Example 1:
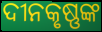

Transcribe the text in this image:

ଦୀନକୃଷ୍ଣଙ୍କ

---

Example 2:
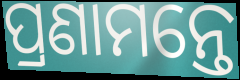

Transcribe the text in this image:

ପ୍ରଣାମନ୍ତେ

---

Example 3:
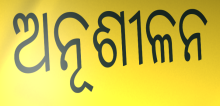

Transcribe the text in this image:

ଅନୂଶୀଳନ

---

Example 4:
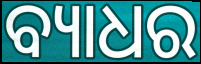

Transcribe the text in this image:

ବ୍ୟାଧର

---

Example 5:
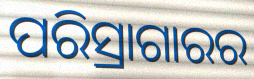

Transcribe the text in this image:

ପରିସ୍ରାଗାରର